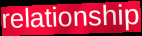
relationship